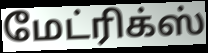
மேட்ரிக்ஸ்